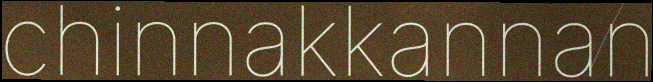
chinnakkannan